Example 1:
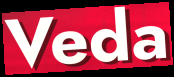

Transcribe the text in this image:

Veda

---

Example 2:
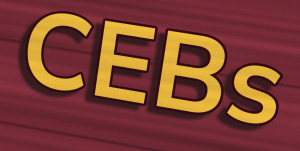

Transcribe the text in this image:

CEBs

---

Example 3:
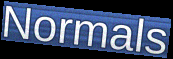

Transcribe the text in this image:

Normals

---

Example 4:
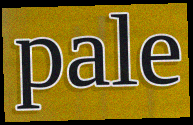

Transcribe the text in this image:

pale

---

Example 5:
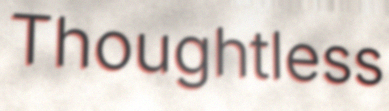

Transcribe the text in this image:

Thoughtless